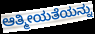
ಆತ್ಮೀಯತೆಯನ್ನು